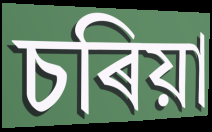
চৰিয়া